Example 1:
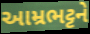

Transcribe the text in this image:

આમ્રભટ્ટને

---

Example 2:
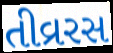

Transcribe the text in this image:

તીવ્રરસ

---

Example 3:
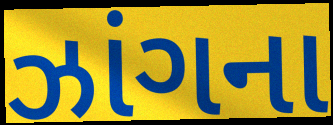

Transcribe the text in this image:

ઝાંગના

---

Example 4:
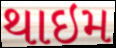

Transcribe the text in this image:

થાઇમ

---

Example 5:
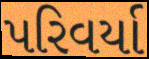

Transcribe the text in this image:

પરિવર્યા